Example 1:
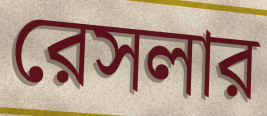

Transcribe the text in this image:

রেসলার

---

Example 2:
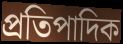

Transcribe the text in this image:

প্রতিপাদিক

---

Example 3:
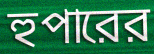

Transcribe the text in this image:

হুপারের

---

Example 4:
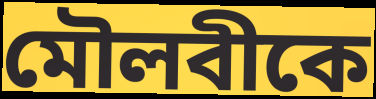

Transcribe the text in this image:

মৌলবীকে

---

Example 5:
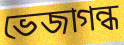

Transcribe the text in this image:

ভেজাগন্ধ